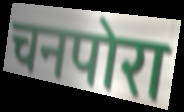
चनपोरा